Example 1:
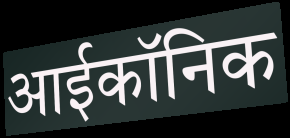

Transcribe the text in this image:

आईकॉनिक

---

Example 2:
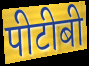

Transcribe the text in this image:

पीटीबी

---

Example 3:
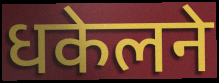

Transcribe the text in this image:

धकेलने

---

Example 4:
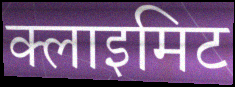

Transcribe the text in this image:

क्लाइमिट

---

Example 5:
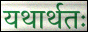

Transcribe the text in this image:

यथार्थतः